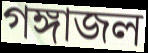
গঙ্গাজল